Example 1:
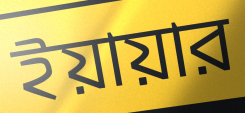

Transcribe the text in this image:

ইয়ায়ার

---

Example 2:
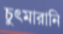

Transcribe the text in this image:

চুৎমারানি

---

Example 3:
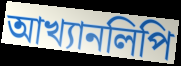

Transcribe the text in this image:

আখ্যানলিপি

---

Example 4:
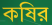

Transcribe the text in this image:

কষির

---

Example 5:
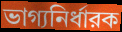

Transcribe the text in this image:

ভাগ্যনির্ধারক